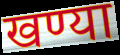
खण्या